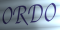
ORDO